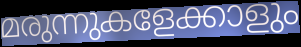
മരുന്നുകളേക്കാളും